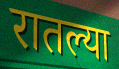
रातल्या